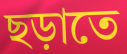
ছড়াতে